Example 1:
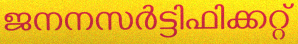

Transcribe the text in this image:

ജനനസർട്ടിഫിക്കറ്റ്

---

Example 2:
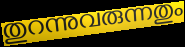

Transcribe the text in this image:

തുറന്നുവരുന്നതും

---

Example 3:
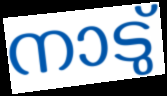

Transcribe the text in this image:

നാടു്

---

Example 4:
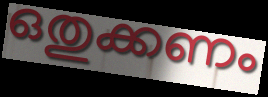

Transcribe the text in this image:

ഒതുക്കണം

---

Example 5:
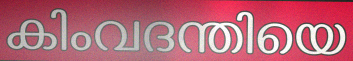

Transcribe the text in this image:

കിംവദന്തിയെ